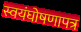
स्वयंघोषणापत्र